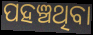
ପହଞ୍ଚଥିବା